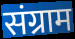
संग्राम